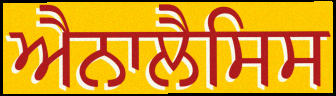
ਐਨਾਲੈਸਿਸ